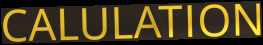
CALULATION